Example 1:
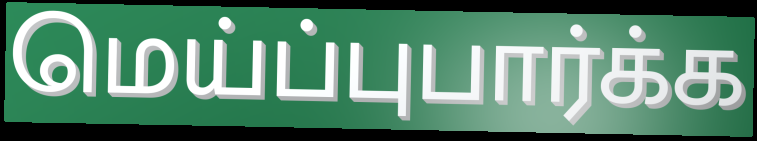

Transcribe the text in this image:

மெய்ப்புபார்க்க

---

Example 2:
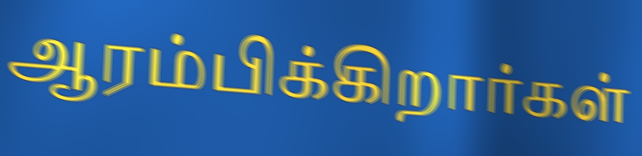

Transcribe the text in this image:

ஆரம்பிக்கிறார்கள்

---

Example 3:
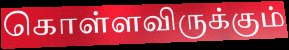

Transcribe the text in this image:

கொள்ளவிருக்கும்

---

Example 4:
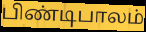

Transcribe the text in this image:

பிண்டிபாலம்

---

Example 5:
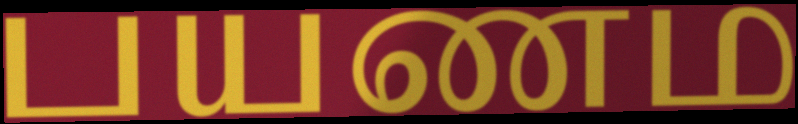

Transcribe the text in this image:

பயணம